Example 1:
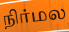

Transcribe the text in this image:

நிர்மல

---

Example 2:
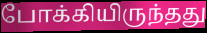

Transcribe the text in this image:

போக்கியிருந்தது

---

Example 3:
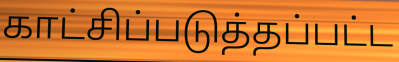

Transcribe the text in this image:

காட்சிப்படுத்தப்பட்ட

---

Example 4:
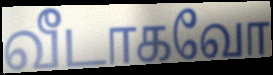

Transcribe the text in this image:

வீடாகவோ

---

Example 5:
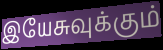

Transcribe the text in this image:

இயேசுவுக்கும்